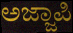
ಅಜ್ಜಾಪಿ